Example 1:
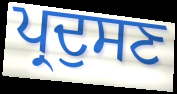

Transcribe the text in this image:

ਪ੍ਰਦੁਸਣ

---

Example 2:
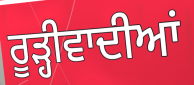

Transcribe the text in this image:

ਰੂੜ੍ਹੀਵਾਦੀਆਂ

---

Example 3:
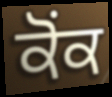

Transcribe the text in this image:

ਕੋਂਕ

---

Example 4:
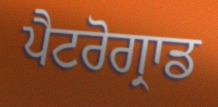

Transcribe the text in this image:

ਪੈਟਰੋਗ੍ਰਾਡ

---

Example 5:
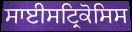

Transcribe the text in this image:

ਸਾਈਸਟ੍ਰਿਕੋਸਿਸ